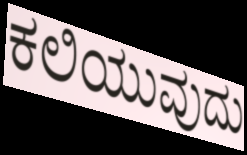
ಕಲಿಯುವುದು